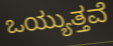
ಒಯ್ಯುತ್ತವೆ